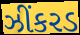
ઝીંકરડ